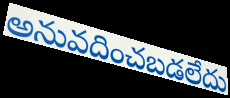
అనువదించబడలేదు